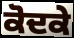
ਕੋਦਕੇ